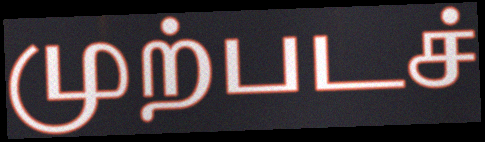
முற்படச்